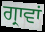
ਗ੍ਰਾਵਾਂ